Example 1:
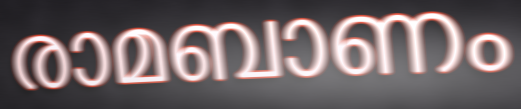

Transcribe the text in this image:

രാമബാണം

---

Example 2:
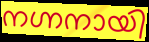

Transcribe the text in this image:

നഗ്നനായി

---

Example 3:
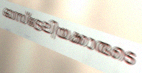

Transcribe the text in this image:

ഓസ്ട്രേലിയക്കാരുടെ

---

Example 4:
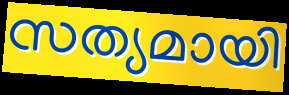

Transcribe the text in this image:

സത്യമായി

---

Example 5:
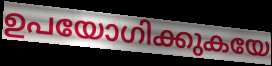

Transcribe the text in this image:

ഉപയോഗിക്കുകയേ